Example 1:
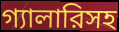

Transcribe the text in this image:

গ্যালারিসহ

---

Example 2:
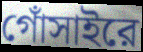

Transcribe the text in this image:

গোঁসাইরে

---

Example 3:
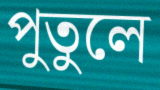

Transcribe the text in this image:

পুতুলে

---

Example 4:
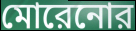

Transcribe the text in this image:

মোরেনোর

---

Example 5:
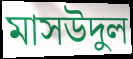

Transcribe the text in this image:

মাসউদুল